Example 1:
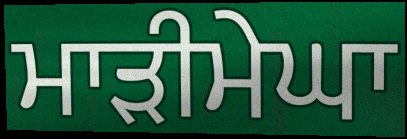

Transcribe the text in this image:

ਮਾੜੀਮੇਘਾ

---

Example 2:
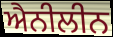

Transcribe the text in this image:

ਐਨੀਲੀਨ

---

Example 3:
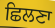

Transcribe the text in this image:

ਛਿਲਣਾ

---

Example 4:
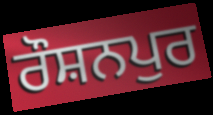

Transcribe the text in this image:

ਰੌਸ਼ਨਪੁਰ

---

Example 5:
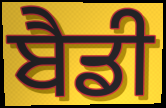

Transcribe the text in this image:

ਬੈਡੀ